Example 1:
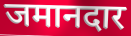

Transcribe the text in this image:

जमानदार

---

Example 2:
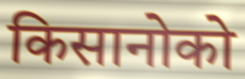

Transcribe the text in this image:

किसानोको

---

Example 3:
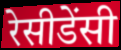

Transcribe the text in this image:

रेसीडेंसी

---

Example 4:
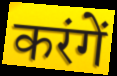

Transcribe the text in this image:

करंगें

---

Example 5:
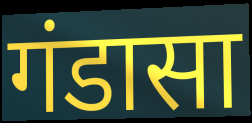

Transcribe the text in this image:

गंडासा